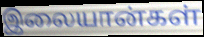
இலையான்கள்